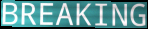
BREAKING